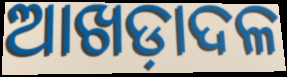
ଆଖଡ଼ାଦଳ